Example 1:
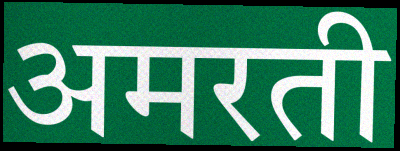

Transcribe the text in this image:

अमरती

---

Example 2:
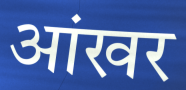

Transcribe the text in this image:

आंखर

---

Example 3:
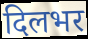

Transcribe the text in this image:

दिलभर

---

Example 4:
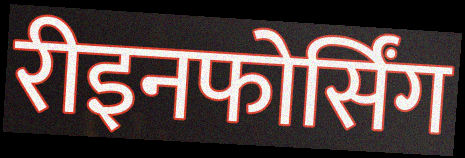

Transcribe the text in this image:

रीइनफोर्सिंग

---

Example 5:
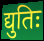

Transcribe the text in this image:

द्युतिः